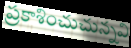
ప్రకాశించుచున్నవి